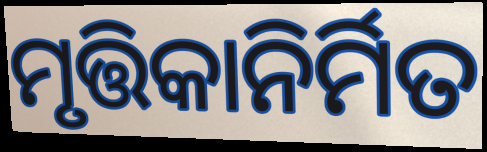
ମୃତ୍ତିକାନିର୍ମିତ